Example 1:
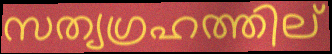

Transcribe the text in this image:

സത്യഗ്രഹത്തില്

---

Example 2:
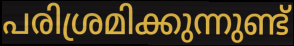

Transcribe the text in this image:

പരിശ്രമിക്കുന്നുണ്ട്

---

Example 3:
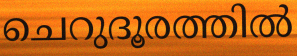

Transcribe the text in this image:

ചെറുദൂരത്തിൽ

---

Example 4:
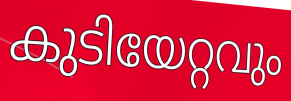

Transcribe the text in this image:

കുടിയേറ്റവും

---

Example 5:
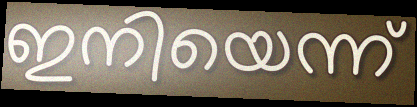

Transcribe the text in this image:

ഇനിയെന്ന്